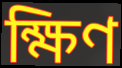
ক্ষিণ